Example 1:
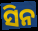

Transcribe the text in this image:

ସିନ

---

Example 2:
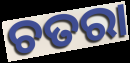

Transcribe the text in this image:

ଚତରା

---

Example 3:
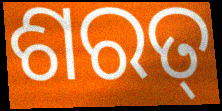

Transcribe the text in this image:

ଶରତ୍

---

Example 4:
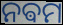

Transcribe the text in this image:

ନଵମ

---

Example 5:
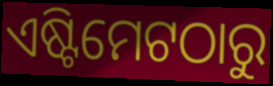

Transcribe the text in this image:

ଏଷ୍ଟିମେଟଠାରୁ